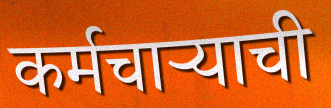
कर्मचाऱ्याची